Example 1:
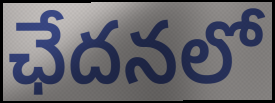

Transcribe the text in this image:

ఛేదనలో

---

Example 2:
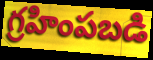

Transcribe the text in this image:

గ్రహింపబడి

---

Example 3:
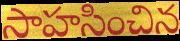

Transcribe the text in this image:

సాహసించిన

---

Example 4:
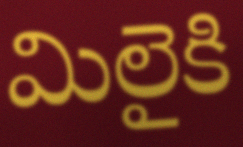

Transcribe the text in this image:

మిలైకి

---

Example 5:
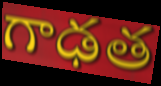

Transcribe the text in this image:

గాఢత